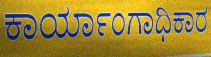
ಕಾರ್ಯಾಂಗಾಧಿಕಾರ